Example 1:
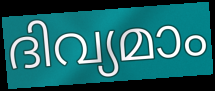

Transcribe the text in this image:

ദിവ്യമാം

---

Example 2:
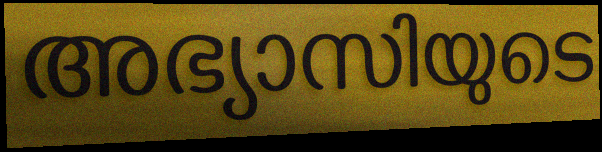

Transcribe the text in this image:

അഭ്യാസിയുടെ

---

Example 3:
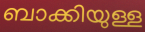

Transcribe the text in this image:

ബാക്കിയുള്ള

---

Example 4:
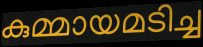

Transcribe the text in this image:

കുമ്മായമടിച്ച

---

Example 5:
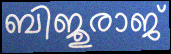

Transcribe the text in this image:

ബിജുരാജ്